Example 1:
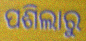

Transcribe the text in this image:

ପଶିଲାରୁ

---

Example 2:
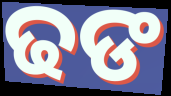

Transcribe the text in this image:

ଢଙ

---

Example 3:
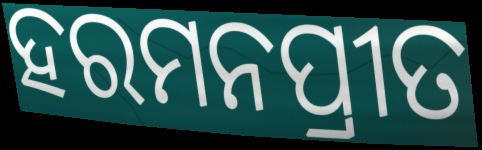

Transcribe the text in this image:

ହରମନପ୍ରୀତ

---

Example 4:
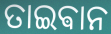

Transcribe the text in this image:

ତାଇଵାନ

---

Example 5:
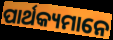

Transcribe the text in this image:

ପାର୍ଥକ୍ୟମାନେ